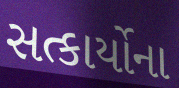
સત્કાર્યોના